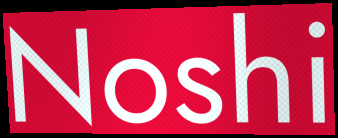
Noshi